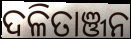
ଦଳିତାଞ୍ଜନ